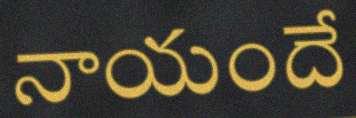
నాయందే